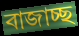
বাজাচ্ছ